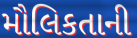
મૌલિકતાની